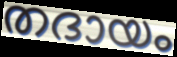
തദായം